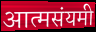
आत्मसंयमी